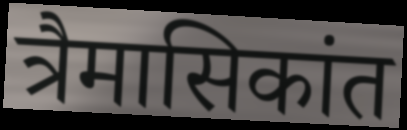
त्रैमासिकांत